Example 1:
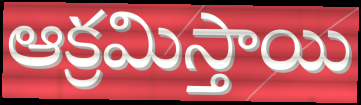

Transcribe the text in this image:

ఆక్రమిస్తాయి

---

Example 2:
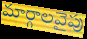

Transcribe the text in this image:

మార్గాలవైపు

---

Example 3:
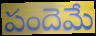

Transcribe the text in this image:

పందెమే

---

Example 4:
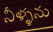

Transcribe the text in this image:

నీళ్ళను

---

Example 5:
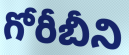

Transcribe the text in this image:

గోరీబీని